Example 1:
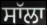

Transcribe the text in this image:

ਸਾੱਲਾ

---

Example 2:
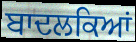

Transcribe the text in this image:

ਬਾਦਲਕਿਆਂ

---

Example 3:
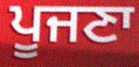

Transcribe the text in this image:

ਪੂਜਣਾ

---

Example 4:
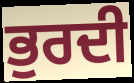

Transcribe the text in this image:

ਭੁਰਦੀ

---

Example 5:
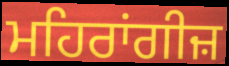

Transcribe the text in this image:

ਮਹਿਰਾਂਗੀਜ਼